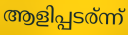
ആളിപ്പടര്ന്ന്